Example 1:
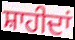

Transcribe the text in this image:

ਸ਼ਾਹੀਦਾਂ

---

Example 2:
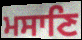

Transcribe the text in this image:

ਮਸਾਣਿ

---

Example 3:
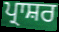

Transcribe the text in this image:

ਪ੍ਰਾਸ਼ਰ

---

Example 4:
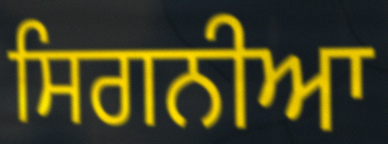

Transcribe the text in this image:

ਸਿਗਨੀਆ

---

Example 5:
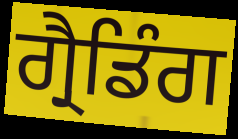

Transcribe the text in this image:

ਗ੍ਰੈਡਿੰਗ